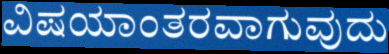
ವಿಷಯಾಂತರವಾಗುವುದು